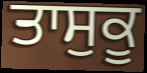
ਤਾਸੁਕੂ